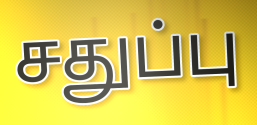
சதுப்பு